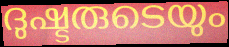
ദുഷ്ടരുടെയും